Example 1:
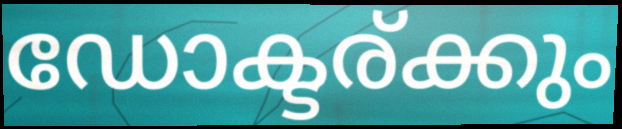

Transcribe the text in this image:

ഡോക്ടര്ക്കും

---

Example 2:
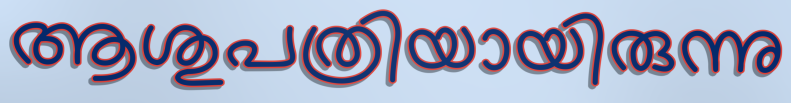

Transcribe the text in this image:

ആശുപത്രിയായിരുന്നു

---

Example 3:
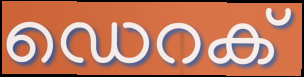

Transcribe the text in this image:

ഡെറക്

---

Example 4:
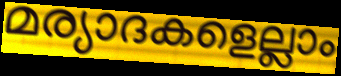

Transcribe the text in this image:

മര്യാദകളെല്ലാം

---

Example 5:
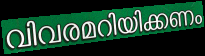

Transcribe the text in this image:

വിവരമറിയിക്കണം